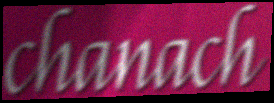
chanach